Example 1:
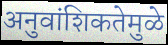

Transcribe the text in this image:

अनुवांशिकतेमुळे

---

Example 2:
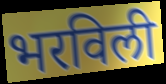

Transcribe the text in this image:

भरविली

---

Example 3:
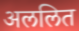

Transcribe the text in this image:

अललित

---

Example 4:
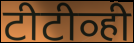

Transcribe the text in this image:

टीटीव्ही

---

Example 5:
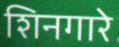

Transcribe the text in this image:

शिनगारे